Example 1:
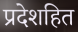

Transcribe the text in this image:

प्रदेशहित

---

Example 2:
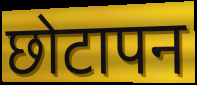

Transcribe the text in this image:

छोटापन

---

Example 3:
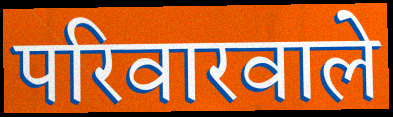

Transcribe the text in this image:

परिवारवाले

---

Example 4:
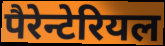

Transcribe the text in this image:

पैरेन्टेरियल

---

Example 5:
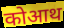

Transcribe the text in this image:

कोआथ